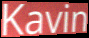
Kavin